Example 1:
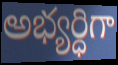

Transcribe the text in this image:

అభ్యర్ధిగా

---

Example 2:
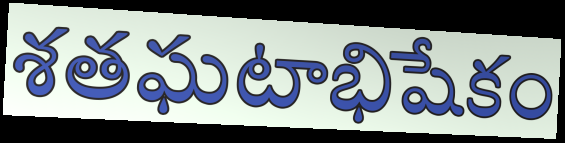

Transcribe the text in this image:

శతఘటాభిషేకం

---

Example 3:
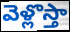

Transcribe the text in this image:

వెళ్లొస్తా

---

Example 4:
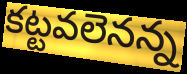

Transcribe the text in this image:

కట్టవలెనన్న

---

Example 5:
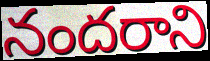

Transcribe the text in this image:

నందరాని